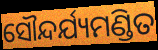
ସୌନ୍ଦର୍ଯ୍ୟମଣ୍ଡିତ